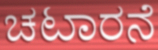
ಚಟಾರನೆ